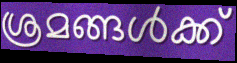
ശ്രമങ്ങൾക്ക്